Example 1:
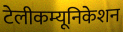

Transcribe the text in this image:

टेलीकम्यूनिकेशन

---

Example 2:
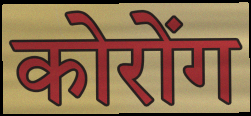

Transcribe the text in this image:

कोरोंग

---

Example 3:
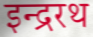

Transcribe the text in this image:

इन्द्ररथ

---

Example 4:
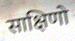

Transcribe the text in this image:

साक्षिणो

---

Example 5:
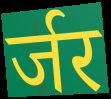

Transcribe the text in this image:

र्जर